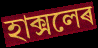
হাক্সলেৰ